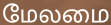
மேலமை